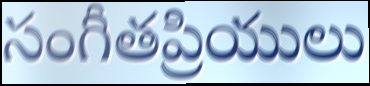
సంగీతప్రియులు